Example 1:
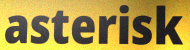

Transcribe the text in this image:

asterisk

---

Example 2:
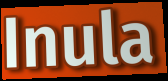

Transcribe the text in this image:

Inula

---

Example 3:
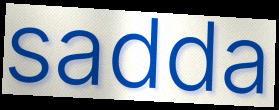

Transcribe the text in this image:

sadda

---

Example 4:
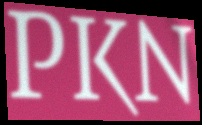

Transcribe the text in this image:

PKN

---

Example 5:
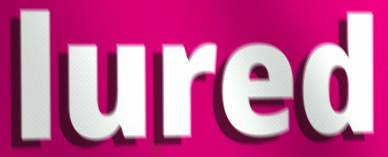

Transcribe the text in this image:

lured